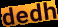
dedh